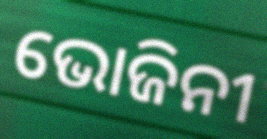
ଭୋଜିନୀ